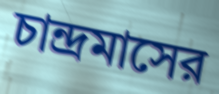
চান্দ্রমাসের